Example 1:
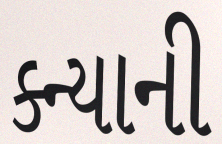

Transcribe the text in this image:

ક્ન્યાની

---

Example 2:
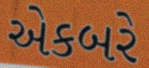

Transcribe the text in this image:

એકબરે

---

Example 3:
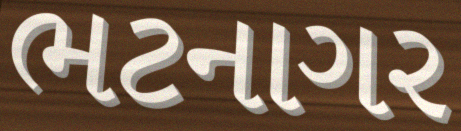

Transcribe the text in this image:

ભટનાગર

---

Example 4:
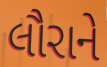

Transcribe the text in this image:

લૌરાને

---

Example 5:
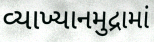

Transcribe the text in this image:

વ્યાખ્યાનમુદ્રામાં